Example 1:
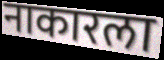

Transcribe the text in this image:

नाकारला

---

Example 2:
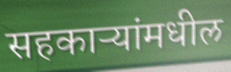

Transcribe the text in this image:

सहकाऱ्यांमधील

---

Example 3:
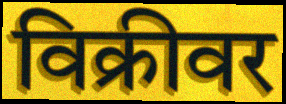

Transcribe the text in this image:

विक्रीवर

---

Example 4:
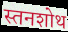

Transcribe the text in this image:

स्तनशोथ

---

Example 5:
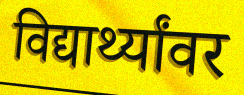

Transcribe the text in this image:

विद्यार्थ्यांवर